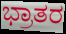
ಭ್ರಾತರ